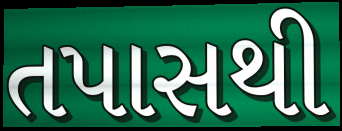
તપાસથી